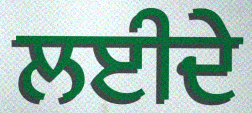
ਲਈਦੇ